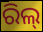
ରିଲ୍